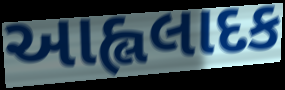
આહ્લલાદક